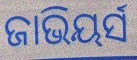
ଜାଭିୟର୍ସ